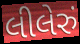
લીલેરું